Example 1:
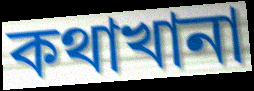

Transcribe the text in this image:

কথাখানা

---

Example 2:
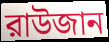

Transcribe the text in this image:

রাউজান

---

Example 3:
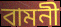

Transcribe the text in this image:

বামনী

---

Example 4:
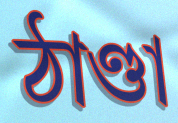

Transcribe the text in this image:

ঠাণ্ডা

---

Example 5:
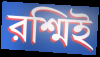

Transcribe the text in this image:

রশ্মিই